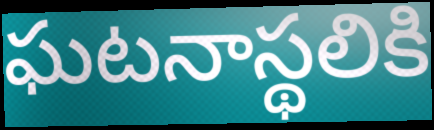
ఘటనాస్థలికి